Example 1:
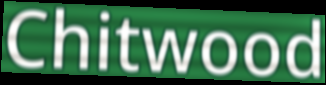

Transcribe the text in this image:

Chitwood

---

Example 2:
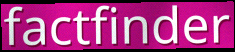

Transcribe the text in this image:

factfinder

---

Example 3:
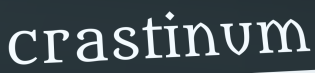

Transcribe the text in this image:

crastinum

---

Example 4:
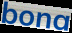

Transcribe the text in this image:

bona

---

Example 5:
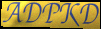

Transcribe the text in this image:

ADPKD